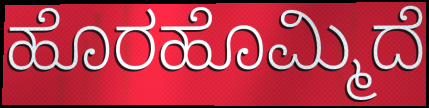
ಹೊರಹೊಮ್ಮಿದೆ